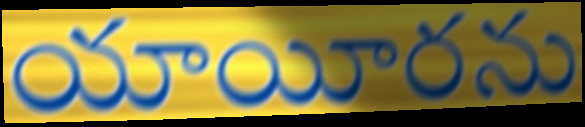
యాయీరను